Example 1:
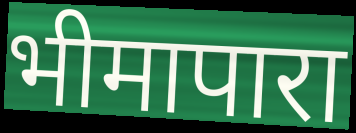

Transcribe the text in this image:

भीमापारा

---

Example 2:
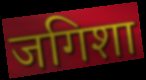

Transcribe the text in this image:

जगिशा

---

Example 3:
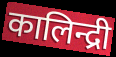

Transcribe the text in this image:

कालिन्द्री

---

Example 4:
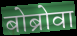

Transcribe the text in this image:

बोब्रोवा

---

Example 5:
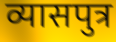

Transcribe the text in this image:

व्यासपुत्र